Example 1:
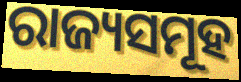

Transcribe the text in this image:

ରାଜ୍ୟସମୂହ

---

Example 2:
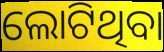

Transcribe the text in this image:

ଲୋଟିଥିବା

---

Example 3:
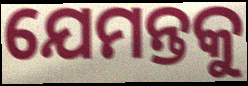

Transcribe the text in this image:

ଯେମନ୍ତକୁ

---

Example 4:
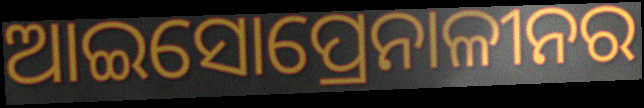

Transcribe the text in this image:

ଆଇସୋପ୍ରେନାଳୀନର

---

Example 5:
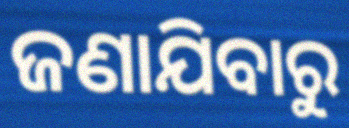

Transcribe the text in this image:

ଜଣାଯିବାରୁ